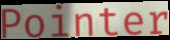
Pointer